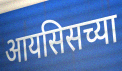
आयसिसच्या